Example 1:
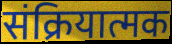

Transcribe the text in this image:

संक्रियात्मक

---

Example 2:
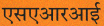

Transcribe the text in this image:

एसएआरआई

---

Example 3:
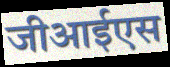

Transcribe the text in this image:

जीआईएस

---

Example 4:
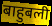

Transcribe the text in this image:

बाहुबली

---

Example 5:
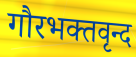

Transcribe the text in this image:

गौरभक्तवृन्द